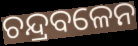
ଚନ୍ଦ୍ରବଳେନ